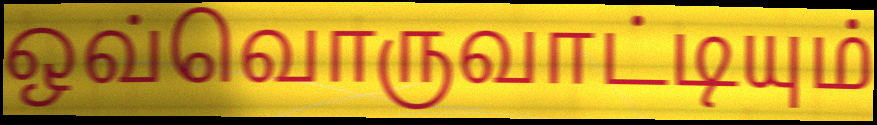
ஒவ்வொருவாட்டியும்